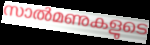
സാൽമണുകളുടെ